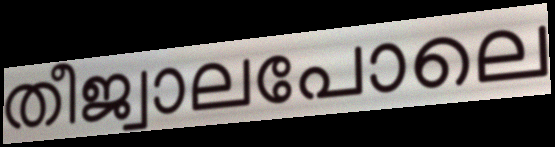
തീജ്വാലപോലെ